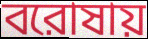
বরোষায়